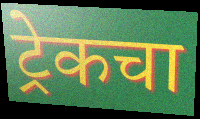
ट्रेकचा